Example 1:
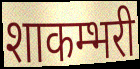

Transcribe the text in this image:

शाकम्भरी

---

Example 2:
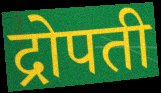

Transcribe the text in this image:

द्रोपती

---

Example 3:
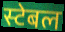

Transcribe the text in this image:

स्टेबल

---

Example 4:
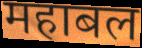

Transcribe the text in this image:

महाबल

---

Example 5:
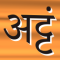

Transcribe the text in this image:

अट्टं